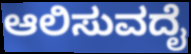
ಆಲಿಸುವದೈ